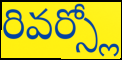
రివర్స్లో